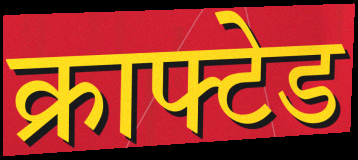
क्राफ्टेड